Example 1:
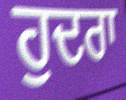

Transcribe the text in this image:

ਹੁਦਰਾ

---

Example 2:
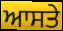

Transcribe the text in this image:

ਆਸਤੇ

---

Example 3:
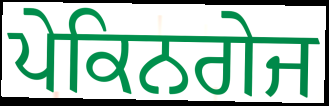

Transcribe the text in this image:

ਪੇਕਿਨਗੇਜ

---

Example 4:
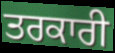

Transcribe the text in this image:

ਤਰਕਾਰੀ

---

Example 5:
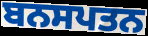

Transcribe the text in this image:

ਬਨਸਪਤਨ